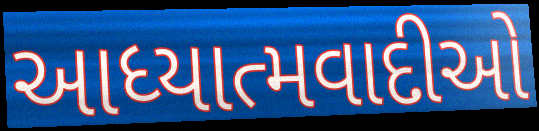
આધ્યાત્મવાદીઓ